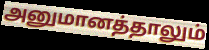
அனுமானத்தாலும்